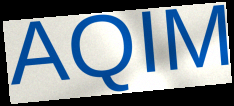
AQIM